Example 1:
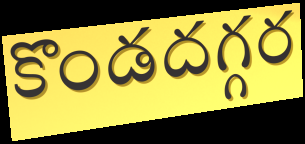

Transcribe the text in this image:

కొండదగ్గర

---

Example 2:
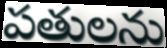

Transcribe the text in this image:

పతులను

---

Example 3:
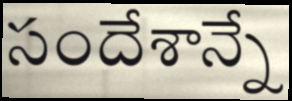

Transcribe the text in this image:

సందేశాన్నే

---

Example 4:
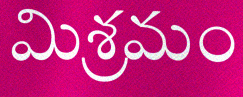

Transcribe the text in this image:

మిశ్రమం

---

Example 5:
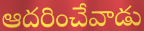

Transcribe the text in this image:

ఆదరించేవాడు